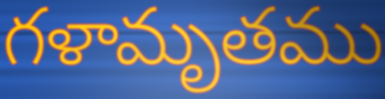
గళామృతము